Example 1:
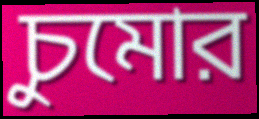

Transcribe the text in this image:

চুমোর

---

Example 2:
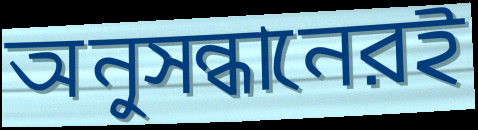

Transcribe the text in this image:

অনুসন্ধানেরই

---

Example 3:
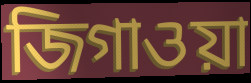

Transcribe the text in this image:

জিগাওয়া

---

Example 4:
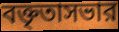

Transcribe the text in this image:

বক্তৃতাসভার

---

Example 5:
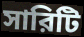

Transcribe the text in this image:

সারিটি